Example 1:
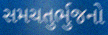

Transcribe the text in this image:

સમચતુર્ભુજનો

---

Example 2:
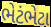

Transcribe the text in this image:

ભેટંભેટા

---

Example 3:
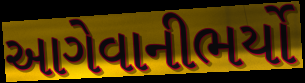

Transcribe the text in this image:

આગેવાનીભર્યો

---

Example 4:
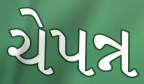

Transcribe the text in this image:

ચેપન્ન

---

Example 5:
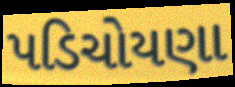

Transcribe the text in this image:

પડિચોયણા